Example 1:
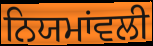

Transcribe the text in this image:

ਨਿਯਮਾਂਵਲੀ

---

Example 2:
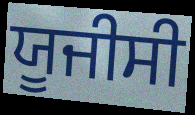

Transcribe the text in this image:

ਯੂਜੀਸੀ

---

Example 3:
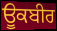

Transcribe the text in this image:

ਊਕਬੀਰ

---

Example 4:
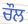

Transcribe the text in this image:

ਚੌਲ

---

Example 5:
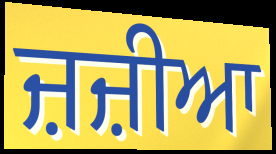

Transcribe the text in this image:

ਜ਼ਜ਼ੀਆ